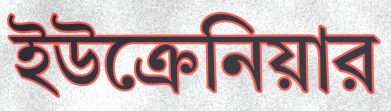
ইউক্রেনিয়ার